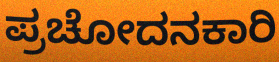
ಪ್ರಚೋದನಕಾರಿ